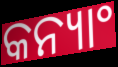
କନ୍ୟାଂ